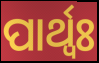
ପାର୍ଥ୍ବଃ